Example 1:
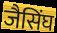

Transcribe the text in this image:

जैसिंघ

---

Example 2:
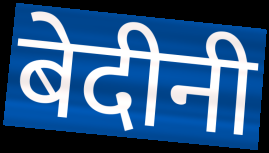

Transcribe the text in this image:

बेदीनी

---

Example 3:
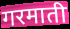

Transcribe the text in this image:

गरमाती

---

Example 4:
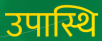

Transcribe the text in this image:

उपास्थि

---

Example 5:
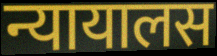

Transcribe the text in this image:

न्यायालस